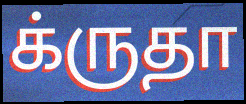
க்ருதா